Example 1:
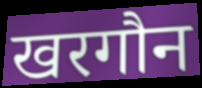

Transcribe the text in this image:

खरगौन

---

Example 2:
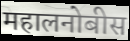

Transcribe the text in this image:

महालनोबीस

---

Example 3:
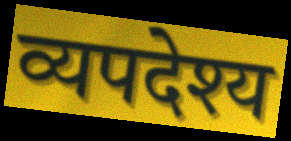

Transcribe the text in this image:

व्यपदेश्य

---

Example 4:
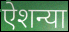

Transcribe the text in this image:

ऐशन्या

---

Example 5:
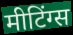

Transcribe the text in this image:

मीटिंग्स